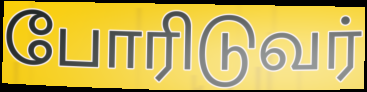
போரிடுவர்